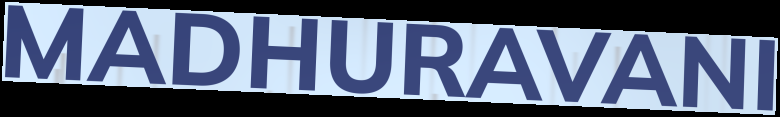
MADHURAVANI